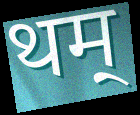
थम्